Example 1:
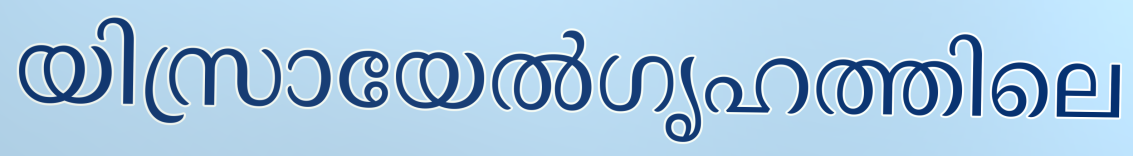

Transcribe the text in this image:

യിസ്രായേൽഗൃഹത്തിലെ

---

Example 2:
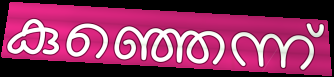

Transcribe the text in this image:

കുഞ്ഞെന്ന്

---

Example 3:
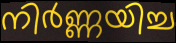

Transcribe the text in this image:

നിർണ്ണയിച്ച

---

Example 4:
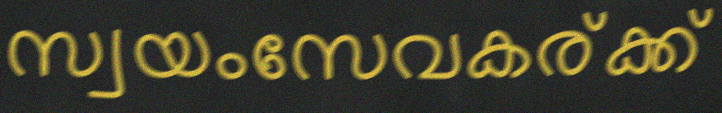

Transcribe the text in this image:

സ്വയംസേവകര്ക്ക്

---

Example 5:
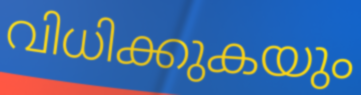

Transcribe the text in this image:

വിധിക്കുകയും